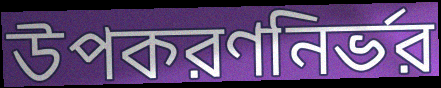
উপকরণনির্ভর